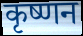
कृष्णन